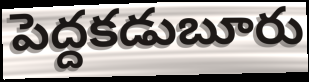
పెద్దకడుబూరు